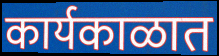
कार्यकाळात